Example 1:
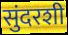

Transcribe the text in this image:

सुंदरशी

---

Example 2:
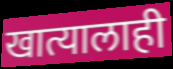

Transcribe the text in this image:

खात्यालाही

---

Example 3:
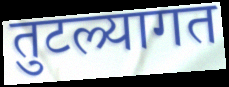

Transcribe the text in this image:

तुटल्यागत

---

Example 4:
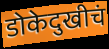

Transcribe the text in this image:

डोकेदुखीचं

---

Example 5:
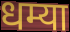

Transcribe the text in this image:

धम्या